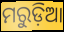
ମରୁଡ଼ିଆ